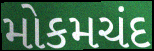
મોકમચંદ